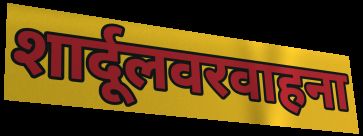
शार्दूलवरवाहना